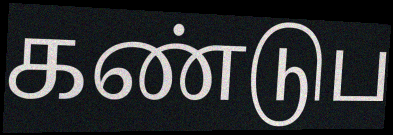
கண்டுப